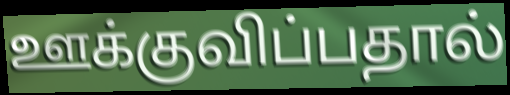
ஊக்குவிப்பதால்